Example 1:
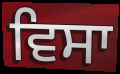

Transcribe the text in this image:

ਵਿਸਾ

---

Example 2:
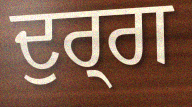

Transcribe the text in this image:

ਦੁਰ੍ਗ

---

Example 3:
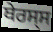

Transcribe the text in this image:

ਥੇਰਸ੍ਸ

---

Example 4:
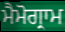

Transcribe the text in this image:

ਮੈਮੋਗ੍ਰਾਮ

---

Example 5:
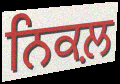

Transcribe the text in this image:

ਨਿਕਲ਼